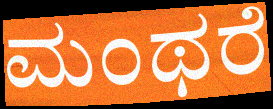
ಮಂಥರೆ